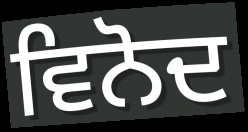
ਵਿਨੋਦ